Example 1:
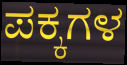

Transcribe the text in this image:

ಪಕ್ಕಗಳ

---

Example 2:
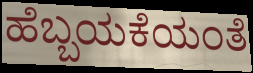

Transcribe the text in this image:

ಹೆಬ್ಬಯಕೆಯಂತೆ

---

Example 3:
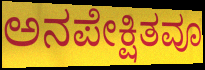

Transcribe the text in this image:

ಅನಪೇಕ್ಷಿತವೂ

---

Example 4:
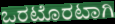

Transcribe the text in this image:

ಒರಟೊರಟಾಗಿ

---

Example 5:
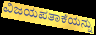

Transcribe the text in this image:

ವಿಜಯಪತಾಕೆಯನ್ನು